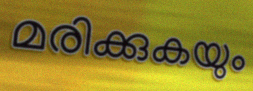
മരിക്കുകയും